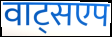
वाट्सएप